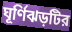
ঘূর্ণিঝড়টির